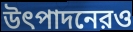
উৎপাদনেরও